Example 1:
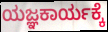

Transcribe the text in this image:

ಯಜ್ಞಕಾರ್ಯಕ್ಕೆ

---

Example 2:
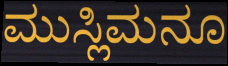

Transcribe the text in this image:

ಮುಸ್ಲಿಮನೂ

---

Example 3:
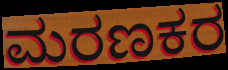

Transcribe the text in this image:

ಮರಣಕರ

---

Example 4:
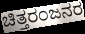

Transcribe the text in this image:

ಚಿತ್ತರಂಜನರ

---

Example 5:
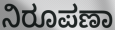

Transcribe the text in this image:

ನಿರೂಪಣಾ